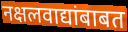
नक्षलवाद्यांबाबत